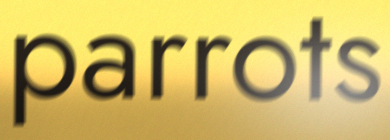
parrots